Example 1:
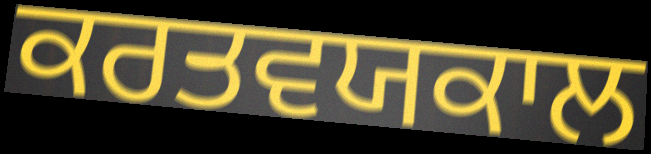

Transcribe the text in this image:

ਕਰਤਵਯਕਾਲ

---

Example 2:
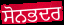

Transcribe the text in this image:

ਸੋਨਭਦਰ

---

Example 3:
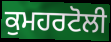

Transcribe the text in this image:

ਕੁਮਹਰਟੋਲੀ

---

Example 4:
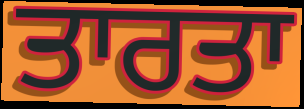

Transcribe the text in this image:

ਤਾਰਤਾ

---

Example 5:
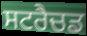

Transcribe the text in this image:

ਸਟਰੈਚਡ